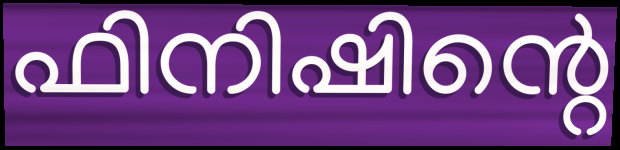
ഫിനിഷിന്റെ